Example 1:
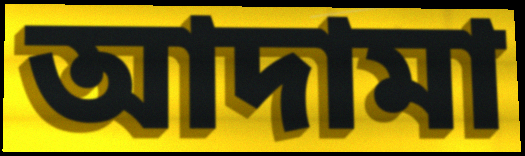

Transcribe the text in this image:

আদামা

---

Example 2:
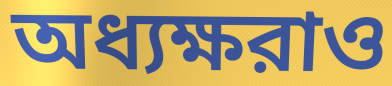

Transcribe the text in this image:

অধ্যক্ষরাও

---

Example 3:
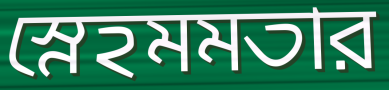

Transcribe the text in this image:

স্নেহমমতার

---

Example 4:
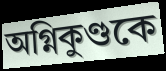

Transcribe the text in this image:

অগ্নিকুণ্ডকে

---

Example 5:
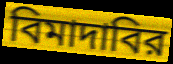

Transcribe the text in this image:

বিমাদাবির